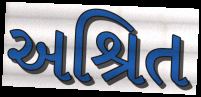
અશ્રિત